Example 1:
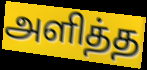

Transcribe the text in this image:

அளித்த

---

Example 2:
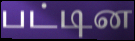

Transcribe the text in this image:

பட்டின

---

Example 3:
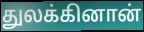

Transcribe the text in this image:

துலக்கினான்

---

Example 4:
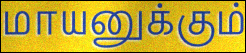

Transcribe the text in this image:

மாயனுக்கும்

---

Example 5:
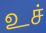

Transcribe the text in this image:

உச்